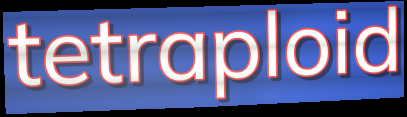
tetraploid